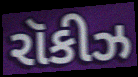
રૉકીઝ